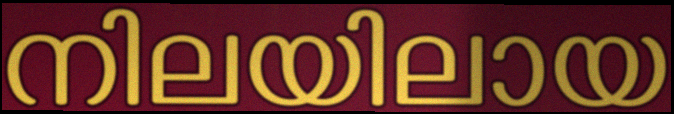
നിലയിലായ